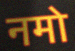
नमो